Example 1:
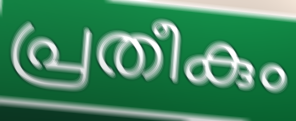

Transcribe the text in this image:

പ്രതീകും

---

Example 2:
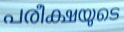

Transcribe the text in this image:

പരീക്ഷയുടെ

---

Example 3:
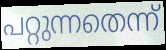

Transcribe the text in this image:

പറ്റുന്നതെന്ന്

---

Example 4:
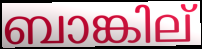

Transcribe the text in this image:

ബാങ്കില്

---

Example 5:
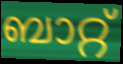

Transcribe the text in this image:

ബാറ്റ്